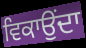
ਵਿਕਾਉੰਦਾ